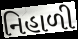
નિહાળી